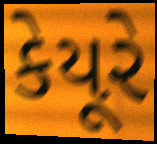
કેયૂરે